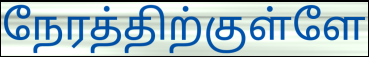
நேரத்திற்குள்ளே